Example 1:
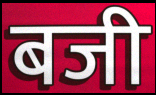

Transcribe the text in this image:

बजी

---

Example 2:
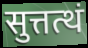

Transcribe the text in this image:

सुत्तत्थं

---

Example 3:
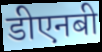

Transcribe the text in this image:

डीएनबी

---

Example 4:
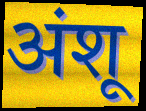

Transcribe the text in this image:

अंशू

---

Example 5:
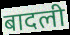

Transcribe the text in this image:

बादली